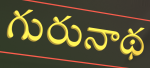
గురునాథ